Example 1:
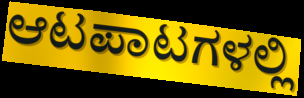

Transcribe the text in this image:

ಆಟಪಾಟಗಳಲ್ಲಿ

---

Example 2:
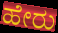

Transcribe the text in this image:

ಹೇರು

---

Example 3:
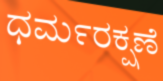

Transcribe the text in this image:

ಧರ್ಮರಕ್ಷಣೆ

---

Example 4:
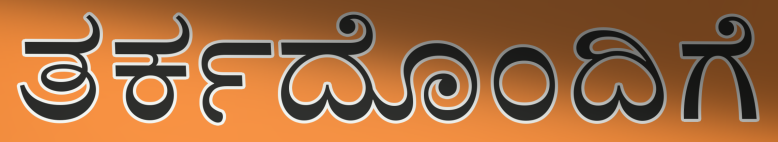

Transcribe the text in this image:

ತರ್ಕದೊಂದಿಗೆ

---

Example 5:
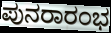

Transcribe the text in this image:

ಪುನರಾರಂಭ